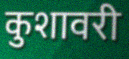
कुशावरी